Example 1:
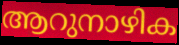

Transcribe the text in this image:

ആറുനാഴിക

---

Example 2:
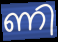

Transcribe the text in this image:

ണി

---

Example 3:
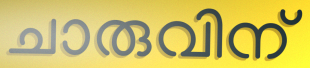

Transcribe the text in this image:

ചാരുവിന്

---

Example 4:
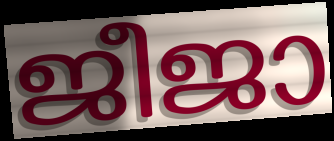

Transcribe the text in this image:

ജീജാ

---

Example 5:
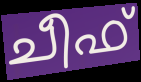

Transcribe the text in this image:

ചീഫ്